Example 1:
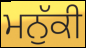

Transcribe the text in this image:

ਮਨੁੱਕੀ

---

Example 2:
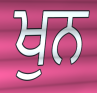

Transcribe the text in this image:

ਖੁਨ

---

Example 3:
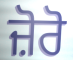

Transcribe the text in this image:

ਜ਼ੋਰੋ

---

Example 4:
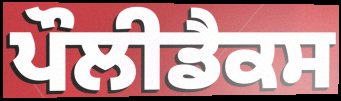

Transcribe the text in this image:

ਪੌਲੀਡੈਕਸ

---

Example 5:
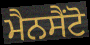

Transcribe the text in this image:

ਮੈਨਸੈਂਟੋ